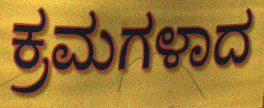
ಕ್ರಮಗಳಾದ